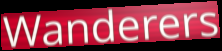
Wanderers